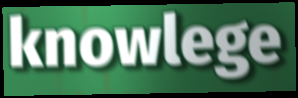
knowlege